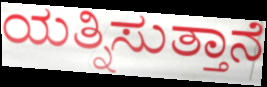
ಯತ್ನಿಸುತ್ತಾನೆ